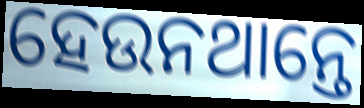
ହେଉନଥାନ୍ତେ